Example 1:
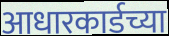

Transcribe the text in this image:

आधारकार्डच्या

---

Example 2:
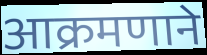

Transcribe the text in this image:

आक्रमणाने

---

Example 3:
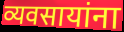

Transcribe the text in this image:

व्यवसायांना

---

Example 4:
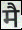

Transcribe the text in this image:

मै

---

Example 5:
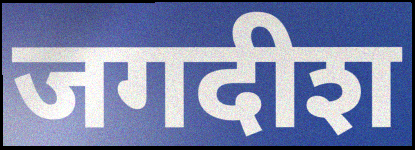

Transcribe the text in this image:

जगदीश